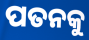
ପତନକୁ